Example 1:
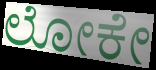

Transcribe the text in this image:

ಲೋಕೇ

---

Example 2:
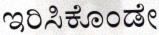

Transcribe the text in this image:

ಇರಿಸಿಕೊಂಡೇ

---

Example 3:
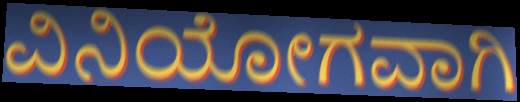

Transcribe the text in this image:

ವಿನಿಯೋಗವಾಗಿ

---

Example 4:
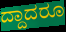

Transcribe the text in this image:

ದ್ದಾದರೂ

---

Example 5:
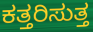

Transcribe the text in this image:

ಕತ್ತರಿಸುತ್ತ